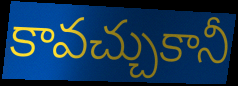
కావచ్చుకానీ